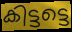
കിട്ടട്ടെ